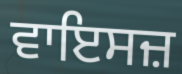
ਵਾਇਸਜ਼